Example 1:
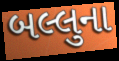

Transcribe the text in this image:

બલ્લુના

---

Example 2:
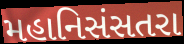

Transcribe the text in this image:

મહાનિસંસતરા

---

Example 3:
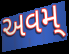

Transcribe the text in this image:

અવમ્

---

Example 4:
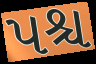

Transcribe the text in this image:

પશ્ચ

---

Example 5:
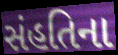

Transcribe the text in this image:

સંહતિના